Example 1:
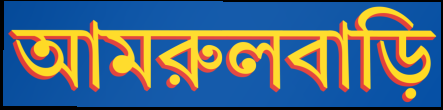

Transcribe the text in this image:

আমরুলবাড়ি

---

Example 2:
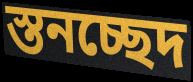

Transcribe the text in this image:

স্তনচ্ছেদ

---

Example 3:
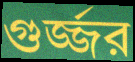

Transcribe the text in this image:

গুর্জ্জর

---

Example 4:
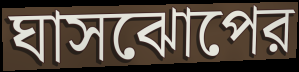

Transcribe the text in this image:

ঘাসঝোপের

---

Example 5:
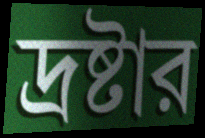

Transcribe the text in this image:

দ্রষ্টার